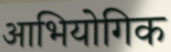
आभियोगिक